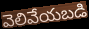
వెలివేయబడి